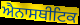
ਐਨਾਸਥੀਟਿਕ